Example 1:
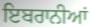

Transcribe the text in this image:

ਇਬਰਾਨੀਆਂ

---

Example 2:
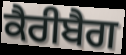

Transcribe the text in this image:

ਕੈਰੀਬੈਗ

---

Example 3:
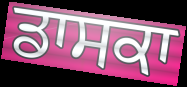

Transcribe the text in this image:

ਡਾਸਕਾ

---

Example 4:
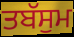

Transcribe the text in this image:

ਤਬੱਸੁਮ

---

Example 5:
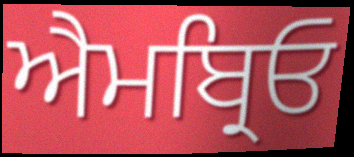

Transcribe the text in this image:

ਐਮਬ੍ਰਿਓ